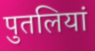
पुतलियां